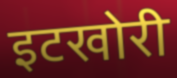
इटखोरी